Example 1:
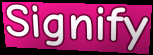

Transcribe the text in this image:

Signify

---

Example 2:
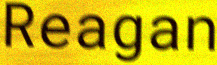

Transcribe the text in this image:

Reagan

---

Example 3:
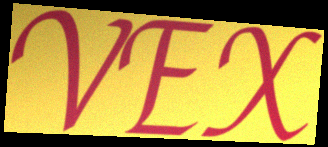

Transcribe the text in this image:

VEX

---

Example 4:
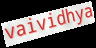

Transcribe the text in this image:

vaividhya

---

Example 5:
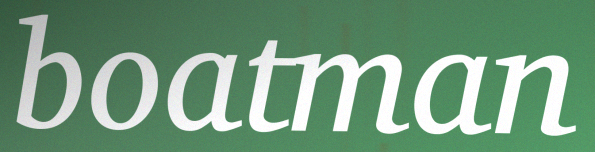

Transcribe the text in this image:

boatman